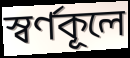
স্বর্ণকূলে